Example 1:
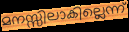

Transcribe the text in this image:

മനസ്സിലാകില്ലെന്ന്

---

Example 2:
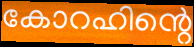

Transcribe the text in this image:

കോറഹിന്റെ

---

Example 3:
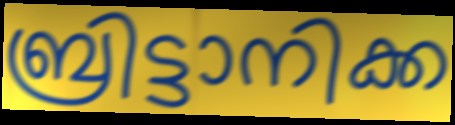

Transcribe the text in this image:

ബ്രിട്ടാനിക്ക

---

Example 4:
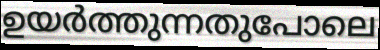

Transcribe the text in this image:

ഉയർത്തുന്നതുപോലെ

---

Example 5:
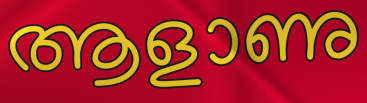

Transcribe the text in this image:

ആളാണു